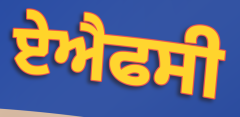
ਏਐਫਸੀ